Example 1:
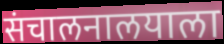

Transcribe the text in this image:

संचालनालयाला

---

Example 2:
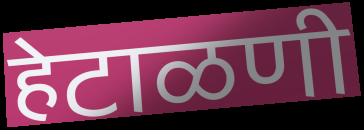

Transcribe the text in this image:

हेटाळणी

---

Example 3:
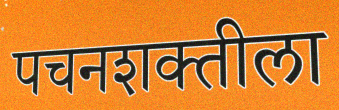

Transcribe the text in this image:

पचनशक्तीला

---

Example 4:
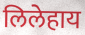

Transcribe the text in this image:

लिलेहाय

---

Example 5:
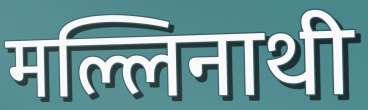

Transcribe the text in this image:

मल्लिनाथी